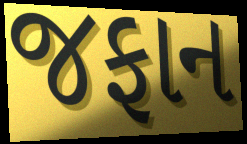
જફાન